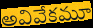
అవివేకమూ